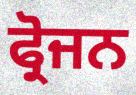
ਫ੍ਰੋਜਨ